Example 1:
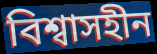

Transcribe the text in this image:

বিশ্বাসহীন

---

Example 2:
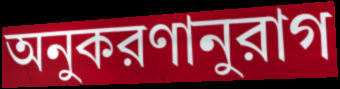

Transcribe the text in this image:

অনুকরণানুরাগ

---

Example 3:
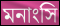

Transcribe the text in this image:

মনাংসি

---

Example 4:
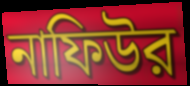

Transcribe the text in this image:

নাফিউর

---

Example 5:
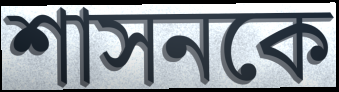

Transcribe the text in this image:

শাসনকে